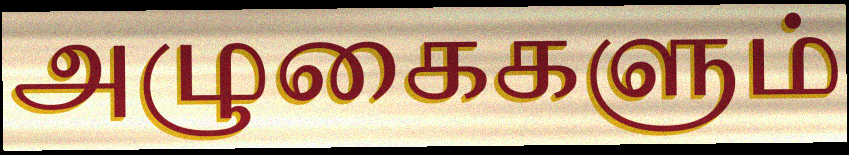
அழுகைகளும்